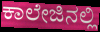
ಕಾಲೇಜಿನಲ್ಲಿ